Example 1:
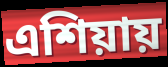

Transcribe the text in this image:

এশিয়ায়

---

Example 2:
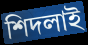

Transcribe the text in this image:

শিদলাই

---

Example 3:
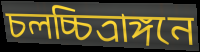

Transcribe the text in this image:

চলচ্চিত্রাঙ্গনে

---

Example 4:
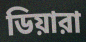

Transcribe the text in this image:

ডিয়ারা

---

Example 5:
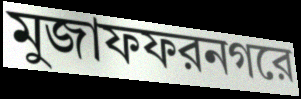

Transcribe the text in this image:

মুজাফফরনগরে